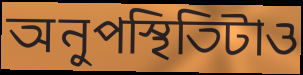
অনুপস্থিতিটাও